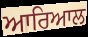
ਆਰਿਆਲ